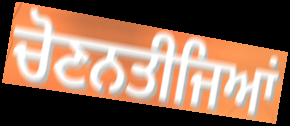
ਚੋਣਨਤੀਜਿਆਂ